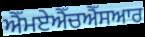
ਐੱਮਏਐੱਚਐੱਸਆਰ